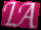
IA